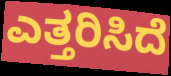
ಎತ್ತರಿಸಿದೆ